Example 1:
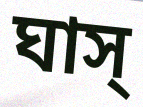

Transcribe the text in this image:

ঘাস্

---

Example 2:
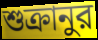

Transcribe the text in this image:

শুক্রানুর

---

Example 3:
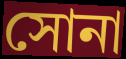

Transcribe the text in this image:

সোনা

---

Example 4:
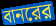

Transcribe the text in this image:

বানরের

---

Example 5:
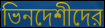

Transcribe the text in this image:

ভিনদেশীদের